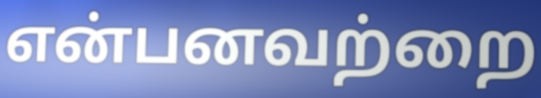
என்பனவற்றை